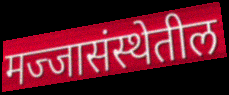
मज्जासंस्थेतील